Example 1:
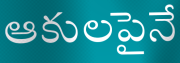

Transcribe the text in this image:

ఆకులపైనే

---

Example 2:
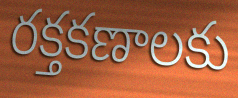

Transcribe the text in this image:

రక్తకణాలకు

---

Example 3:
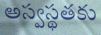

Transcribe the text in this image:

అస్వస్థతకు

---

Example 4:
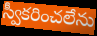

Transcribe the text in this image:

స్వీకరించలేను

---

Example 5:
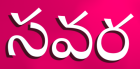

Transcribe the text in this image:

సవర